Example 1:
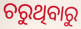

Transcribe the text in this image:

ଚରୁଥିବାରୁ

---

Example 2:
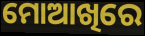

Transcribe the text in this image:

ମୋଆଖିରେ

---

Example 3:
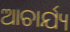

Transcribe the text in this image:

ଆଚାର୍ଯ୍ୟ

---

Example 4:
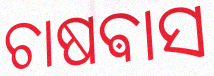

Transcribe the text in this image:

ଚାଷଵାସ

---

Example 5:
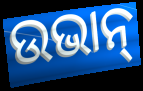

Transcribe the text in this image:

ଉଭାନ୍